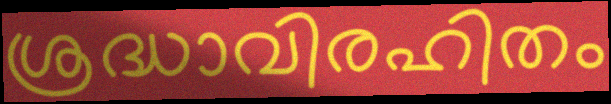
ശ്രദ്ധാവിരഹിതം